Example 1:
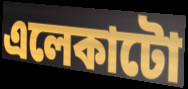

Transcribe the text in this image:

এলেকাটো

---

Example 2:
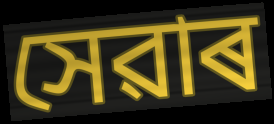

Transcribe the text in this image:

সেৱাৰ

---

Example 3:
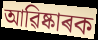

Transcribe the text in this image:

আৱিষ্কাৰক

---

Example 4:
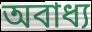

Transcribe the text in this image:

অবাধ্য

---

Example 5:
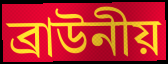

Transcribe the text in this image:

ব্ৰাউনীয়